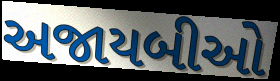
અજાયબીઓ